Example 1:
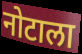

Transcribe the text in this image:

नोटाला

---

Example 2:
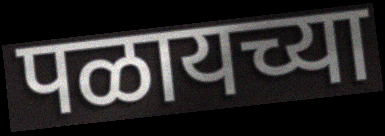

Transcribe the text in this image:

पळायच्या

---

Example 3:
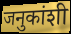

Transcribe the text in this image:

जनुकांशी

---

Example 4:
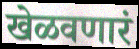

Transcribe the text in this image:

खेळवणारं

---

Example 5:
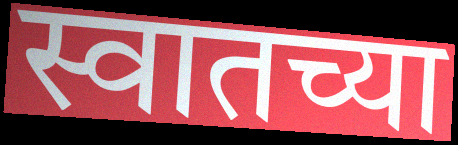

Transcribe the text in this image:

स्वातच्या